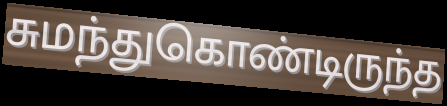
சுமந்துகொண்டிருந்த